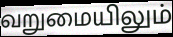
வறுமையிலும்